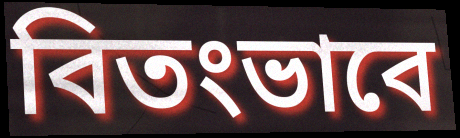
বিতংভাবে